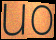
uo